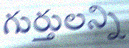
గుర్తులన్ని